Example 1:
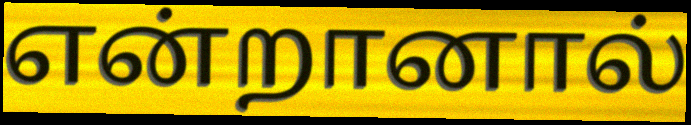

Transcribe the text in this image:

என்றானால்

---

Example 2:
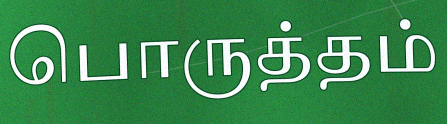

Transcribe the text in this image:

பொருத்தம்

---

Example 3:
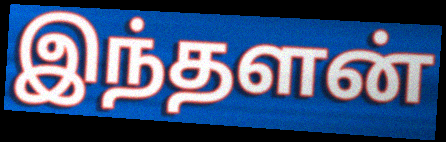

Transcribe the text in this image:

இந்தளன்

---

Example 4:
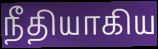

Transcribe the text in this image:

நீதியாகிய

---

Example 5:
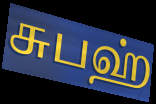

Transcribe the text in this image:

சுபஹ்